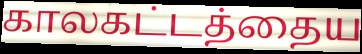
காலகட்டத்தைய